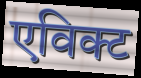
एविक्ट